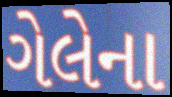
ગેલેના